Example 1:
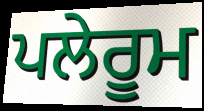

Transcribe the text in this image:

ਪਲੇਰੂਮ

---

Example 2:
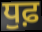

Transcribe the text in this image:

ਧੁਫ਼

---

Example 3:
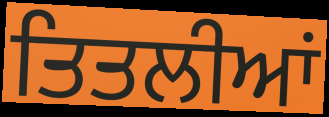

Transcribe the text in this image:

ਤਿਤਲੀਆਂ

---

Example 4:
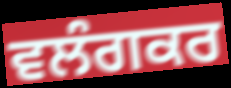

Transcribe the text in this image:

ਵਲੰਗਕਰ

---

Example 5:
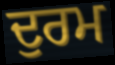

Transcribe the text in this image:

ਦੁਰਮ